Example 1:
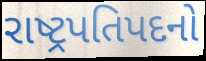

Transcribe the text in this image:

રાષ્ટ્રપતિપદનો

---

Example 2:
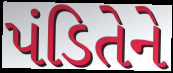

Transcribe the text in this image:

પંડિતેને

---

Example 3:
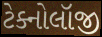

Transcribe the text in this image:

ટેક્નોલૉજી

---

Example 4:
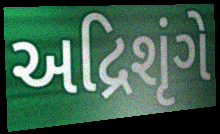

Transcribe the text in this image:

અદ્રિશૃંગે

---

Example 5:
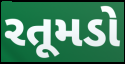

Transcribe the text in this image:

રતૂમડો